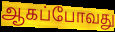
ஆகப்போவது